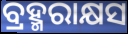
ବ୍ରହ୍ମରାକ୍ଷସ